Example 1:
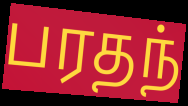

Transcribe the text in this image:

பரதந்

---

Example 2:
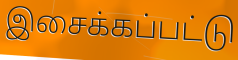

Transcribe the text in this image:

இசைக்கப்பட்டு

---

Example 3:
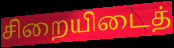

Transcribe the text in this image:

சிறையிடைத்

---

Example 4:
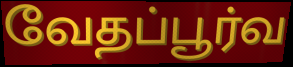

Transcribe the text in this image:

வேதப்பூர்வ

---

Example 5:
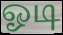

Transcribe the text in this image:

ஓடி